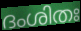
ദംശിതഃ